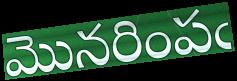
మొనరింపఁ